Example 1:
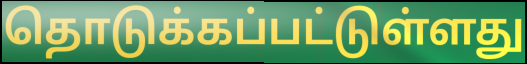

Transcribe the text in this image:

தொடுக்கப்பட்டுள்ளது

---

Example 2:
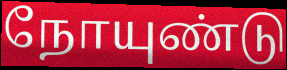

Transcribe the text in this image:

நோயுண்டு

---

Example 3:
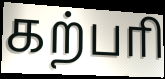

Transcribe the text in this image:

கற்பரி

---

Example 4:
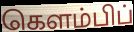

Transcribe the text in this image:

கௌம்பிப்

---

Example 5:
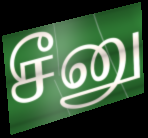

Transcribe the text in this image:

சீனு